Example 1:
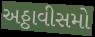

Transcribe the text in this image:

અઠ્ઠાવીસમો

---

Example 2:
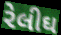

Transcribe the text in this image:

રેલીઘ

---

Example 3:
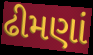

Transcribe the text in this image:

ઢીમણાં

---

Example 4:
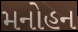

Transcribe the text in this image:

મનોહન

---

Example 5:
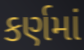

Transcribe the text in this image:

કર્ણમાં